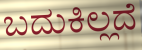
ಬದುಕಿಲ್ಲದೆ